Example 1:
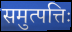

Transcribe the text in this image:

समुत्पत्तिः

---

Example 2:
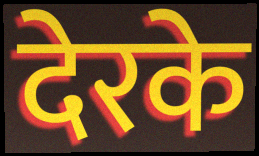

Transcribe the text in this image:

देरके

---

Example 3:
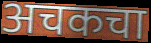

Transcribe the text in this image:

अचकचा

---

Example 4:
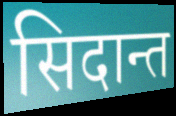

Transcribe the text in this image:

सिदान्त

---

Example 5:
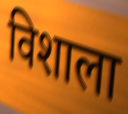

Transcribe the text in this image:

विशाला